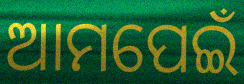
ଆମପେଇଁ